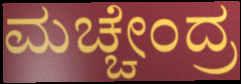
ಮಚ್ಚೇಂದ್ರ